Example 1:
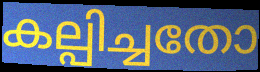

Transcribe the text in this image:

കല്പിച്ചതോ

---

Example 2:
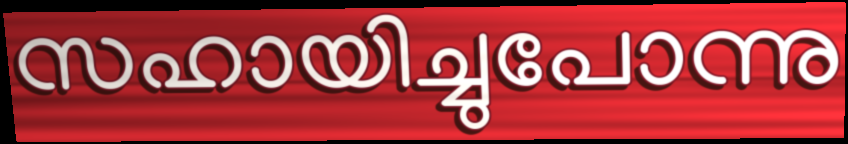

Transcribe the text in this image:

സഹായിച്ചുപോന്നു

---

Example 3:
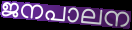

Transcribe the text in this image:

ജനപാലന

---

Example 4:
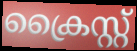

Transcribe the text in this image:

ക്രൈസ്റ്റ്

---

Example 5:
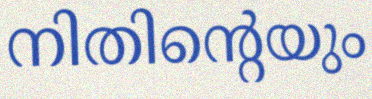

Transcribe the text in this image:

നിതിന്റെയും